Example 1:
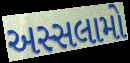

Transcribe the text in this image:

અસ્સલામો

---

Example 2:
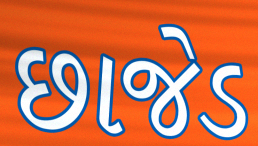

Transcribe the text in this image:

છાજેડ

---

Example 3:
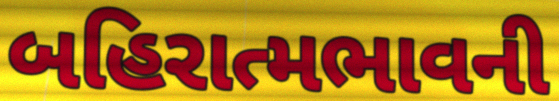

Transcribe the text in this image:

બહિરાત્મભાવની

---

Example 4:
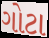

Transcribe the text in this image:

ગોટા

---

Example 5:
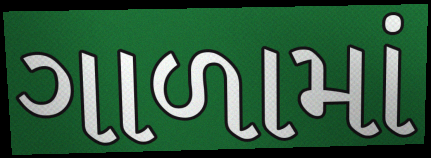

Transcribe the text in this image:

ગાળામાં